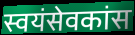
स्वयंसेवकांस